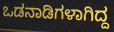
ಒಡನಾಡಿಗಳಾಗಿದ್ದ